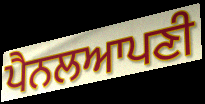
ਪੈਨਲਆਪਣੀ